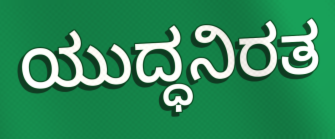
ಯುದ್ಧನಿರತ